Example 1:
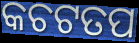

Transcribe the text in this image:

କଚଟତପ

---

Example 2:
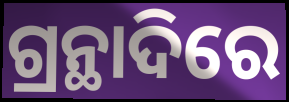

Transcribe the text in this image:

ଗ୍ରନ୍ଥାଦିରେ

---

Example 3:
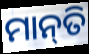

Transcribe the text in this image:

ମାନ୍‌ତି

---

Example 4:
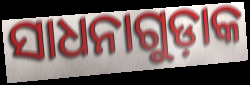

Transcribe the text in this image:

ସାଧନାଗୁଡ଼ାକ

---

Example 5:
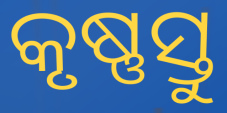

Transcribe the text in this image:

କୃଷ୍ଣସ୍ତୁ